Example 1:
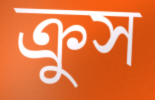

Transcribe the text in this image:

ক্রুস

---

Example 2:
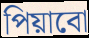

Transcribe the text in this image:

পিয়াবো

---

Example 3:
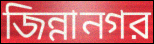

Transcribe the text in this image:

জিন্নানগর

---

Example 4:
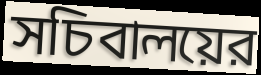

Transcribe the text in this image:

সচিবালয়ের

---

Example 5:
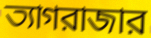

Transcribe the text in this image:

ত্যাগরাজার